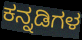
ಕನ್ನಡಿಗಳ